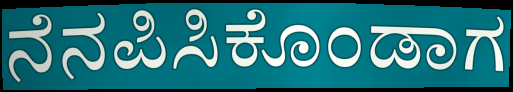
ನೆನಪಿಸಿಕೊಂಡಾಗ